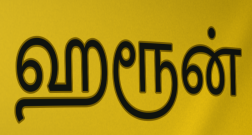
ஹரூன்